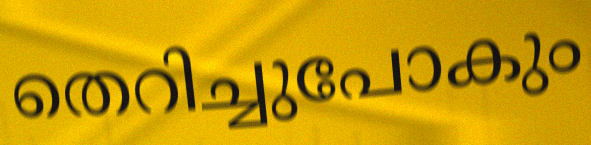
തെറിച്ചുപോകും